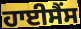
ਹਾਈਸੈਂਸ